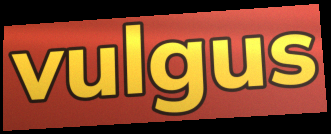
vulgus